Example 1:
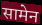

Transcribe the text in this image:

सामेन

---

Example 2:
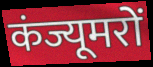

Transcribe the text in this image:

कंज्यूमरों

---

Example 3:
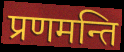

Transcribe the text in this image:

प्रणमन्ति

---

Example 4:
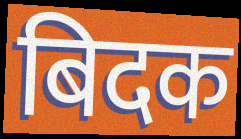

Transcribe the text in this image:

बिदक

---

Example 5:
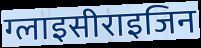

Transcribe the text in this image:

ग्लाइसीराइजिन